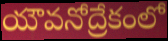
యౌవనోద్రేకంలో